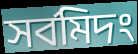
সর্বমিদং